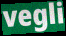
vegli